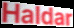
Haldar